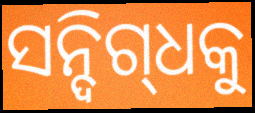
ସନ୍ଦିଗ୍‌ଧକୁ